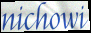
nichowi